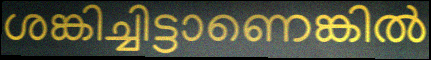
ശങ്കിച്ചിട്ടാണെങ്കിൽ